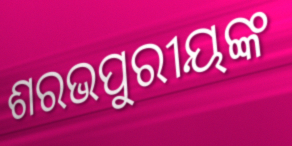
ଶରଭପୁରୀୟଙ୍କ